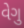
વેગુ